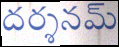
దర్శనమ్